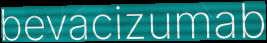
bevacizumab